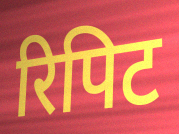
रिपिट